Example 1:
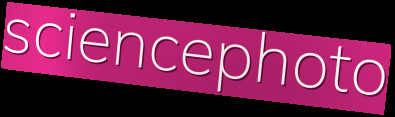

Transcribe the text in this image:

sciencephoto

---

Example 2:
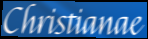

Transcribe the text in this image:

Christianae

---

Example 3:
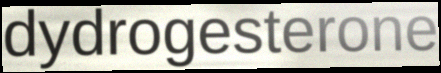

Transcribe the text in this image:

dydrogesterone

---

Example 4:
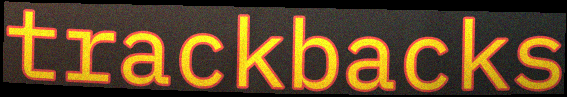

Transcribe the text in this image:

trackbacks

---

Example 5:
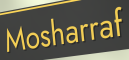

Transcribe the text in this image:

Mosharraf